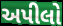
અપીલો